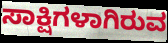
ಸಾಕ್ಷಿಗಳಾಗಿರುವ